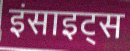
इंसाइट्स